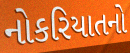
નોકરિયાતનો